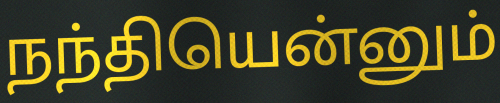
நந்தியென்னும்